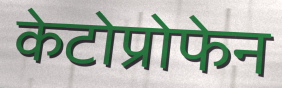
केटोप्रोफेन